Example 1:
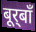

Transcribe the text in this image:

बूर्‌बाँ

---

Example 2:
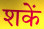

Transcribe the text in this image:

शकें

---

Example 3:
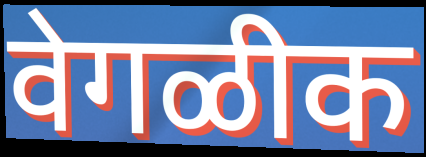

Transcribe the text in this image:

वेगळीक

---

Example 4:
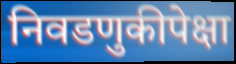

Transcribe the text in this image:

निवडणुकीपेक्षा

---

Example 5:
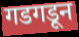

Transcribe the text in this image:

गडगडून